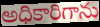
అధికారిగాను